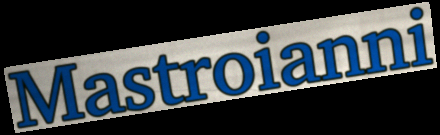
Mastroianni